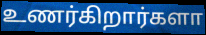
உணர்கிறார்களா